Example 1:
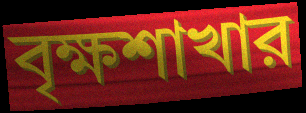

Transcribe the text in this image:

বৃক্ষশাখার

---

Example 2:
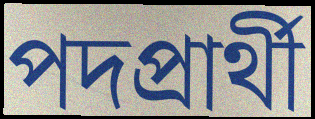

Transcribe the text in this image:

পদপ্রার্থী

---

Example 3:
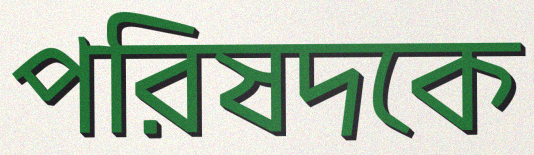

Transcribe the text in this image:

পরিষদকে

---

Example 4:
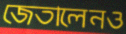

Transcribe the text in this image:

জেতালেনও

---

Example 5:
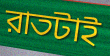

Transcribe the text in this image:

রাতটাই